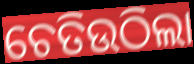
ଚେତିଉଠିଲା